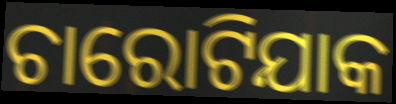
ଚାରୋଟିଯାକ